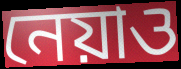
নেয়াও